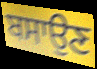
ਬਸਾਉਣ